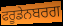
ਫਰੂਡੇਨਬਰਗ